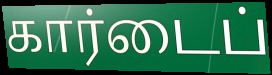
கார்டைப்